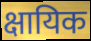
क्षायिक